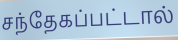
சந்தேகப்பட்டால்